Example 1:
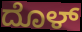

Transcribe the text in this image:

ದೊಳ್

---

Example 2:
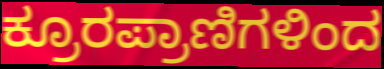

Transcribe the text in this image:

ಕ್ರೂರಪ್ರಾಣಿಗಳಿಂದ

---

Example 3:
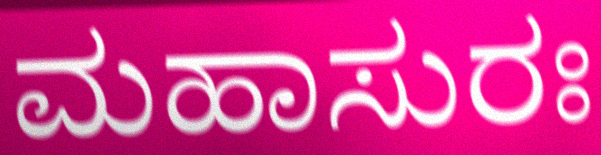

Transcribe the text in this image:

ಮಹಾಸುರಃ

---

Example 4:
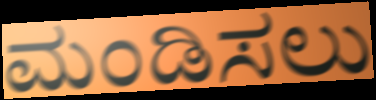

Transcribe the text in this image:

ಮಂಡಿಸಲು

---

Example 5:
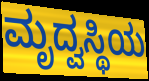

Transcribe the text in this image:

ಮೃದ್ವಸ್ಥಿಯ